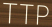
TTP